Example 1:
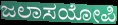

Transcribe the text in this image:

ಜಲಾಸಯೋಪಿ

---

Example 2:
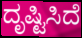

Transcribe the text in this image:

ದೃಷ್ಟಿಸಿದೆ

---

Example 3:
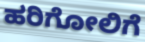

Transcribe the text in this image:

ಹರಿಗೋಲಿಗೆ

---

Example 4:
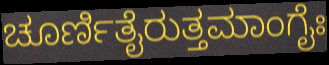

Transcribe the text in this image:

ಚೂರ್ಣಿತೈರುತ್ತಮಾಂಗೈಃ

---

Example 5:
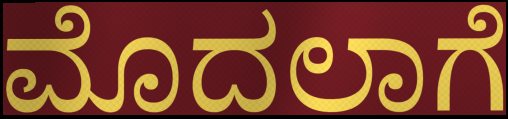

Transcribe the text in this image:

ಮೊದಲಾಗೆ